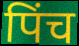
पिंच